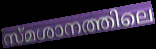
സ്മശാനത്തിലെ